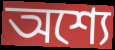
অশ্যে